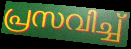
പ്രസവിച്ച്